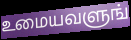
உமையவளுங்